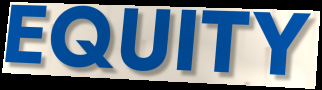
EQUITY